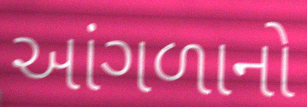
આંગળાનો